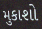
મુકાશો